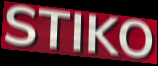
STIKO